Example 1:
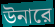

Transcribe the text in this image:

উনারে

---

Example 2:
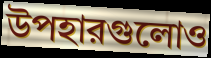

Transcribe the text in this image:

উপহারগুলোও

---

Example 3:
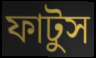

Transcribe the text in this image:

ফাটুস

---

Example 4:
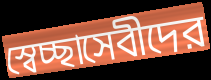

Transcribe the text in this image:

স্বেচ্ছাসেবীদের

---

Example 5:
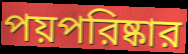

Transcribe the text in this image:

পয়পরিষ্কার